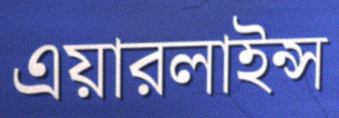
এয়ারলাইন্স